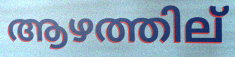
ആഴത്തില്